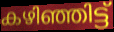
കഴിഞ്ഞിട്ട്